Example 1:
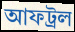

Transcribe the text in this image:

আফট্রল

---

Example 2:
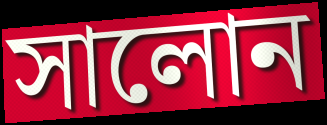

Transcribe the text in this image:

সালোন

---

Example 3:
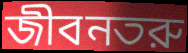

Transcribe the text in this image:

জীবনতরু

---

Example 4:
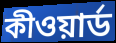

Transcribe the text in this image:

কীওয়ার্ড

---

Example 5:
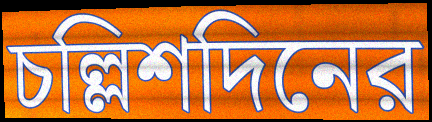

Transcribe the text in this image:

চল্লিশদিনের